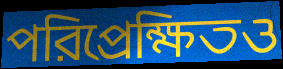
পরিপ্রেক্ষিতও